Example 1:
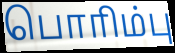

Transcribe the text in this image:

பொரிம்பு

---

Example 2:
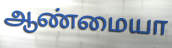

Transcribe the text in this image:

ஆண்மையா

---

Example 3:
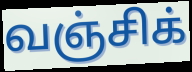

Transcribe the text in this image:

வஞ்சிக்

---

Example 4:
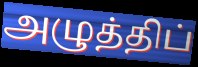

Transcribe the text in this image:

அழுத்திப்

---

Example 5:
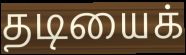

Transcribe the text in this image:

தடியைக்